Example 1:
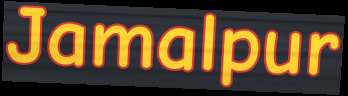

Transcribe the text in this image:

Jamalpur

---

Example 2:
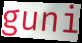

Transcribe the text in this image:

guni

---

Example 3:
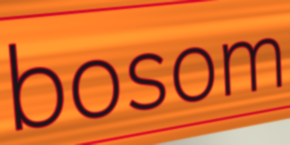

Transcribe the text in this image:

bosom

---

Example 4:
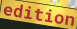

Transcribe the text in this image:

edition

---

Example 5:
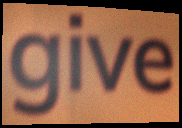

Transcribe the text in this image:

give